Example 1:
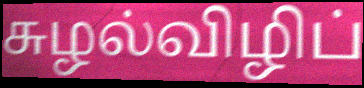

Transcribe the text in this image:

சுழல்விழிப்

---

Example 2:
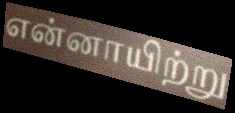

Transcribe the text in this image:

என்னாயிற்று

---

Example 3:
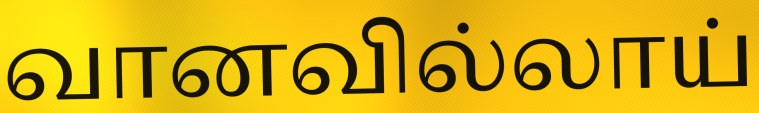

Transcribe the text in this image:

வானவில்லாய்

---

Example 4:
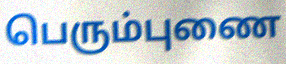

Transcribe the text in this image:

பெரும்புணை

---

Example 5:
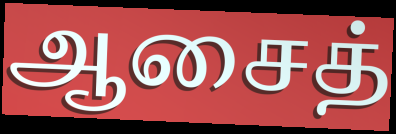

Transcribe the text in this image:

ஆசைத்